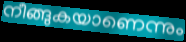
നീങ്ങുകയാണെന്നും